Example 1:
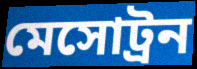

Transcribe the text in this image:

মেসোট্রন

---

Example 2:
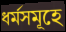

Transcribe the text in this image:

ধর্মসমূহে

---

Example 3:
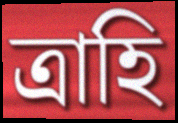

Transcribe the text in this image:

ত্রাহি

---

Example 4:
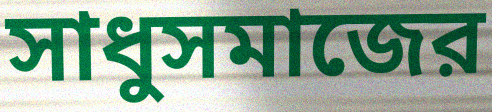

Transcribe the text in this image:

সাধুসমাজের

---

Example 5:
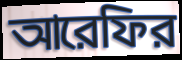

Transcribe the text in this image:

আরেফির